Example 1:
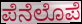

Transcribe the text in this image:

ಪೆನೆಲೊಪೆ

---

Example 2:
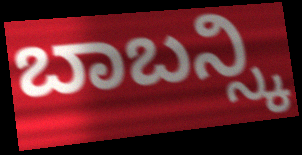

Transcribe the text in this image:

ಬಾಬನ್ಸ್ಕಿ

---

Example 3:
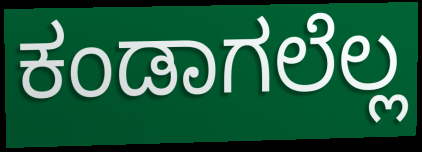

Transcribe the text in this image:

ಕಂಡಾಗಲೆಲ್ಲ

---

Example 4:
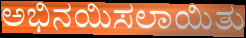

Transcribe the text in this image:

ಅಭಿನಯಿಸಲಾಯಿತು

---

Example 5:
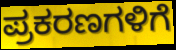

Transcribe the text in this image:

ಪ್ರಕರಣಗಳಿಗೆ